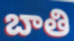
బాతి